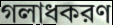
গলাধকরণ